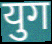
युग